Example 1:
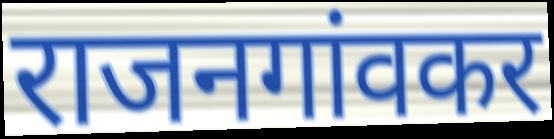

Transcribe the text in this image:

राजनगांवकर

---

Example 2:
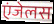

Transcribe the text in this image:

एंजेलस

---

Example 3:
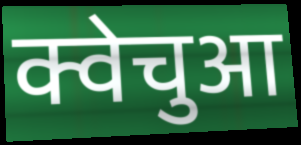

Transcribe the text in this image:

क्वेचुआ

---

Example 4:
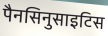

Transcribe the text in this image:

पैनसिनुसाइटिस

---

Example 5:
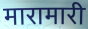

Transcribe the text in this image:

मारामारी